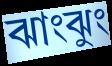
ঝাংঝুং